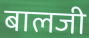
बालजी